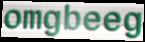
omgbeeg